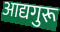
आद्यगुरू